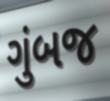
ગુંબજ